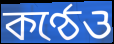
কণ্ঠেও